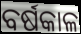
ବର୍ଷକାଳ